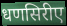
धणसिरीए